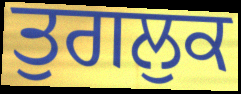
ਤੁਗਲੁਕ